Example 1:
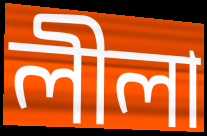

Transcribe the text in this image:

লীলা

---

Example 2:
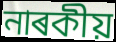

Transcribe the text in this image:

নাৰকীয়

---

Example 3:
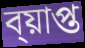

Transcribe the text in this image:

ব্য়াপ্ত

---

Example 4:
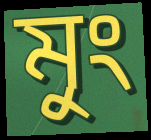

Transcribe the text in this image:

মুং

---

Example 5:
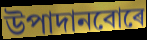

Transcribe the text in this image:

উপাদানবোৰে